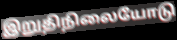
இறுதிநிலையோடு